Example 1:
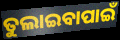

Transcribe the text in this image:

ତୁଲାଇବାପାଇଁ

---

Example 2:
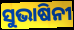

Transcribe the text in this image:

ସୁଭାଷିନୀ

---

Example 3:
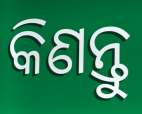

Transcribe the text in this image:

କିଣନ୍ତୁ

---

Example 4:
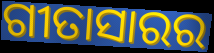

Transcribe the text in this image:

ଗୀତାସାରର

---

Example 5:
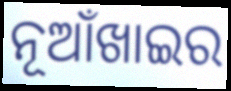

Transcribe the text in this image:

ନୂଆଁଖାଇର